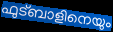
ഫുട്ബാളിനെയും